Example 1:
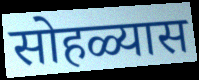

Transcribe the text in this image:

सोहळ्यास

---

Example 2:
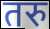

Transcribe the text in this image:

तरु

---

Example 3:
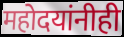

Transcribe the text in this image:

महोदयांनीही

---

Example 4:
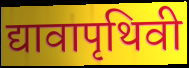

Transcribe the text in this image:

द्यावापृथिवी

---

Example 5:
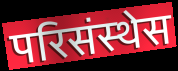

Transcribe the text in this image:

परिसंस्थेस